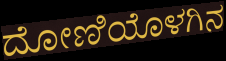
ದೋಣಿಯೊಳಗಿನ